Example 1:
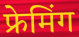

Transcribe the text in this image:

फ्रेमिंग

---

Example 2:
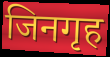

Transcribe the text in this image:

जिनगृह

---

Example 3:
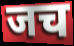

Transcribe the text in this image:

जच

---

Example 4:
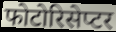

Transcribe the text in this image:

फोटोरिसेप्टर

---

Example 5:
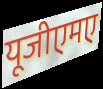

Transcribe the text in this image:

यूजीएमए